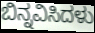
ಬಿನ್ನವಿಸಿದಳು